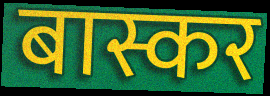
बास्कर